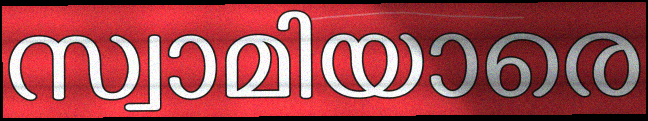
സ്വാമിയാരെ